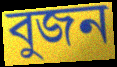
বুজন